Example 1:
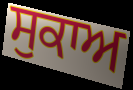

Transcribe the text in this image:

ਸੁਕਾਅ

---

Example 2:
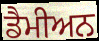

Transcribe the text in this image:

ਡੈਮੀਅਨ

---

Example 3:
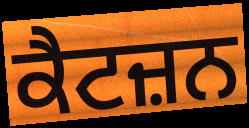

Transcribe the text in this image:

ਕੈਟਜ਼ਨ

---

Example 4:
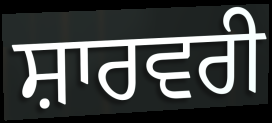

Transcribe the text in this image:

ਸ਼ਾਰਵਰੀ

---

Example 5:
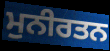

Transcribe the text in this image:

ਮੁਨੀਰਤਨ